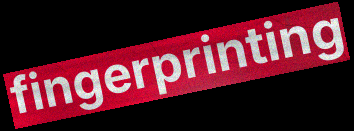
fingerprinting